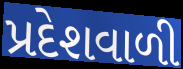
પ્રદેશવાળી